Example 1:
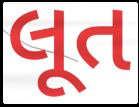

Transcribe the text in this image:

લૂત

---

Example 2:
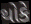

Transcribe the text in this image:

થોકે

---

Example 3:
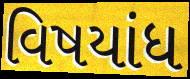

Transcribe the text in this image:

વિષયાંધ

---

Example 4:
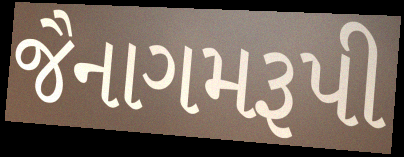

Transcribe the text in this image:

જૈનાગમરૂપી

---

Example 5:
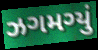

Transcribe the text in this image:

ઝગમગ્યું